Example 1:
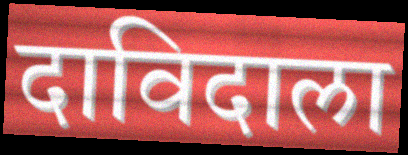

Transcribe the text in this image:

दाविदाला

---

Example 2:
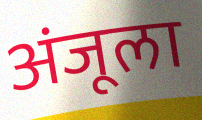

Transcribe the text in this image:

अंजूला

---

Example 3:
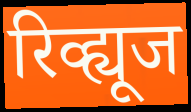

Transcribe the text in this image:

रिव्ह्यूज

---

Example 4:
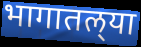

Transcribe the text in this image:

भागातल्या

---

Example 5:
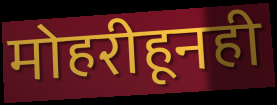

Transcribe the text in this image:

मोहरीहूनही